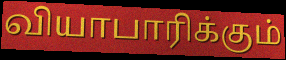
வியாபாரிக்கும்